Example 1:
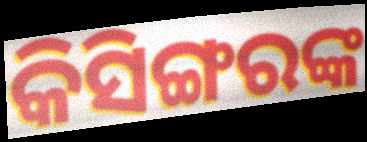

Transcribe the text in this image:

କିସିଙ୍ଗରଙ୍କ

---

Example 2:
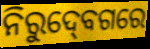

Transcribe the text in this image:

ନିରୁଦ୍‍ବେଗରେ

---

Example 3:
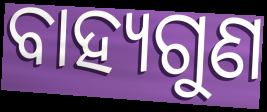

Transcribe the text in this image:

ବାହ୍ୟଗୁଣ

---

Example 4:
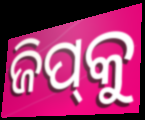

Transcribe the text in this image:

ଜିପ୍‌କୁ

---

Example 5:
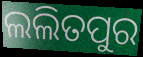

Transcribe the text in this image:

ଲଲିତପୁର